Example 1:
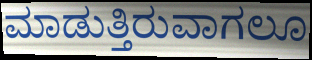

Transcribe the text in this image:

ಮಾಡುತ್ತಿರುವಾಗಲೂ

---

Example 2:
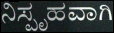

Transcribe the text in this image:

ನಿಸ್ಪೃಹವಾಗಿ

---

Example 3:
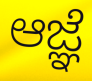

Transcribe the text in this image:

ಆಜ್ಞೆ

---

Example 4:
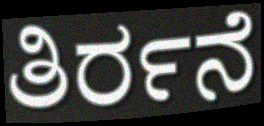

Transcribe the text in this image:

ತಿರ್ರನೆ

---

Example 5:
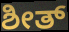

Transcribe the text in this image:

ಶೀತ್